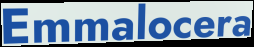
Emmalocera